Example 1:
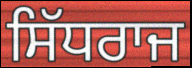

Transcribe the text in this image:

ਸਿੱਧਰਾਜ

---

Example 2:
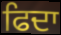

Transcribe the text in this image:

ਫਿਦਾ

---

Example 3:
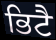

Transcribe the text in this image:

ਭਿਟੈ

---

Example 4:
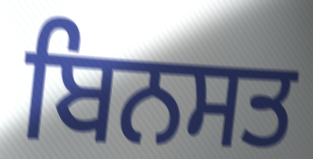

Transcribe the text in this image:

ਬਿਨਸਤ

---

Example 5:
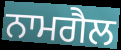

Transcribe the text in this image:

ਨਾਮਗੈਲ